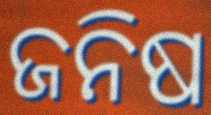
ଜନିଷ